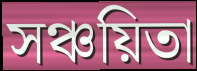
সঞ্চয়িতা